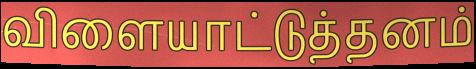
விளையாட்டுத்தனம்